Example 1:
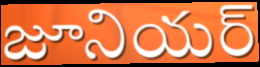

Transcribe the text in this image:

జూనియర్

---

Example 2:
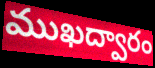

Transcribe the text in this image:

ముఖద్వారం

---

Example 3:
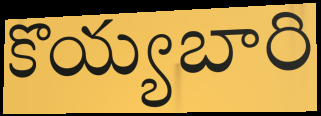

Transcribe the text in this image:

కొయ్యబారి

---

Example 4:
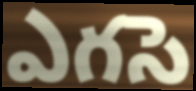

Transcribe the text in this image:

ఎగసె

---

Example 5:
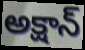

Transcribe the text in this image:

అక్షాన్